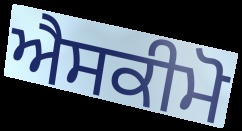
ਐਸਕੀਮੋ